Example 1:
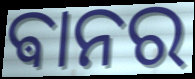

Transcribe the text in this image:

ଵାନର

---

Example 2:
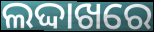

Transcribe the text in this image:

ଲଦ୍ଦାଖରେ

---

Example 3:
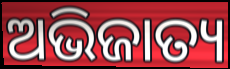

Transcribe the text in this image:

ଅଭିଜାତ୍ୟ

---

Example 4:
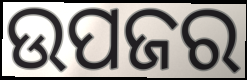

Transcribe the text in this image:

ଉପଜର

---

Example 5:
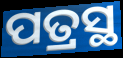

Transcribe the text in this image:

ପତ୍ରସ୍ଥ